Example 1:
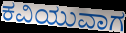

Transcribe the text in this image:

ಕವಿಯುವಾಗ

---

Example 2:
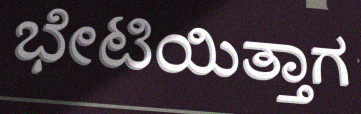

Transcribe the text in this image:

ಭೇಟಿಯಿತ್ತಾಗ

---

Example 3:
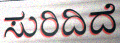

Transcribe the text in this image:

ಸುರಿದಿದೆ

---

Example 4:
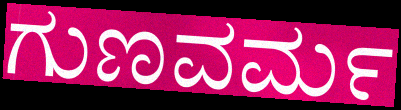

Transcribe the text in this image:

ಗುಣವರ್ಮ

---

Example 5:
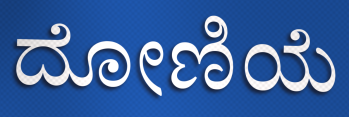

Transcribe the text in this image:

ದೋಣಿಯೆ